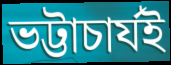
ভট্টাচাৰ্যই